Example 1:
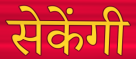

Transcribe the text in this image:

सेकेंगी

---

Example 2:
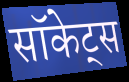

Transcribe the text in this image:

सॉकेट्स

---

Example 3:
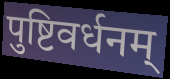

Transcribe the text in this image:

पुष्टिवर्धनम्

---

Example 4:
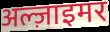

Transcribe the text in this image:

अल्ज़ाइमर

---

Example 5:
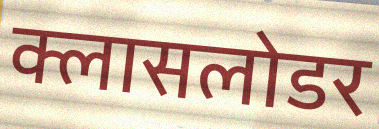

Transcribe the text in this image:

क्लासलोडर